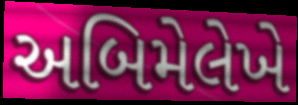
અબિમેલેખે